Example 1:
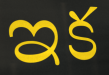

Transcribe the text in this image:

ఇక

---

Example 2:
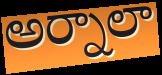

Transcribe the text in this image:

అర్నాలా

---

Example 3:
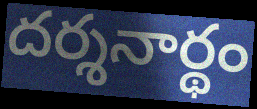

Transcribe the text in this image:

దర్శనార్థం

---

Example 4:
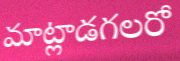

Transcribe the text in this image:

మాట్లాడగలరో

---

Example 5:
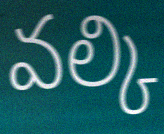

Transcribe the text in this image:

వల్కి